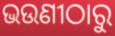
ଭଉଣୀଠାରୁ